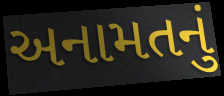
અનામતનું